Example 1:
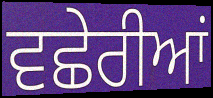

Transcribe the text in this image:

ਵਛੇਰੀਆਂ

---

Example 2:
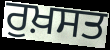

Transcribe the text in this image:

ਰੁਖ਼ਸਤ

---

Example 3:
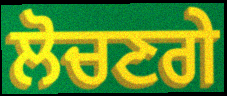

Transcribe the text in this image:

ਲੋਚਣਗੇ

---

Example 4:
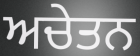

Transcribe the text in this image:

ਅਚੇਤਨ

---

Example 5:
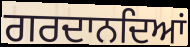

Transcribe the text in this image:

ਗਰਦਾਨਦਿਆਂ